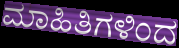
ಮಾಹಿತಿಗಳಿಂದ